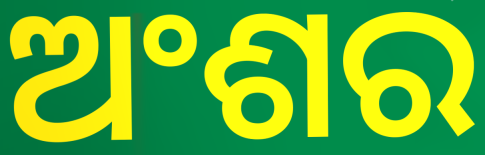
ଅଂଶର